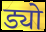
ड्यो